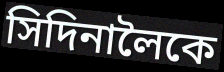
সিদিনালৈকে